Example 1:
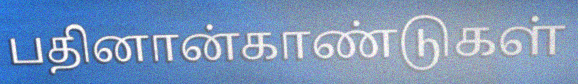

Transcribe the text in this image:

பதினான்காண்டுகள்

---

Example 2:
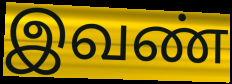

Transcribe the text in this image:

இவண்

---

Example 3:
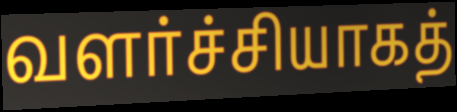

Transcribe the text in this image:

வளர்ச்சியாகத்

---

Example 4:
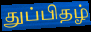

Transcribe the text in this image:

துப்பிதழ்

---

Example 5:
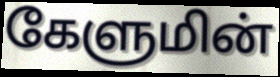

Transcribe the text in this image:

கேளுமின்